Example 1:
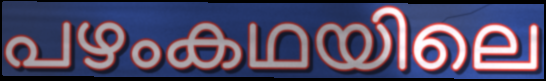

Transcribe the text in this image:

പഴംകഥയിലെ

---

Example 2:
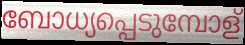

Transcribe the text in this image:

ബോധ്യപ്പെടുമ്പോള്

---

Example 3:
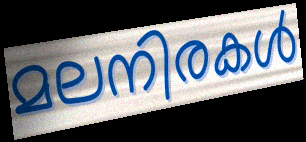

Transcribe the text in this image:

മലനിരകൾ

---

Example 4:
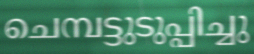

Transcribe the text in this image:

ചെമ്പട്ടുടുപ്പിച്ചു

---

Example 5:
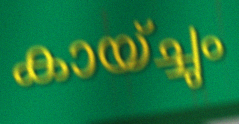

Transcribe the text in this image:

കായ്ച്ചും